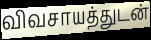
விவசாயத்துடன்